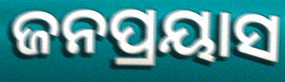
ଜନପ୍ରୟାସ